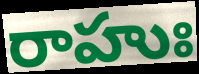
రాహుః